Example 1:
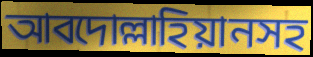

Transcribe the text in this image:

আবদোল্লাহিয়ানসহ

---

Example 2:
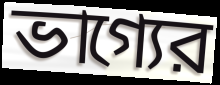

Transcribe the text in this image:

ভাগ্যের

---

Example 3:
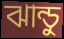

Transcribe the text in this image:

ঝান্ডু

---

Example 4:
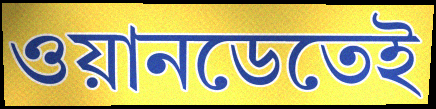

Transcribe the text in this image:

ওয়ানডেতেই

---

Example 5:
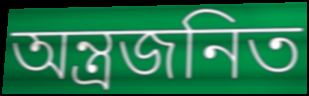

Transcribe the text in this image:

অন্ত্রজনিত